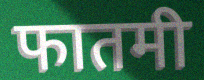
फातमी